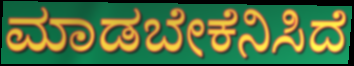
ಮಾಡಬೇಕೆನಿಸಿದೆ